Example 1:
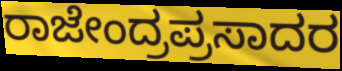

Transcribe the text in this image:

ರಾಜೇಂದ್ರಪ್ರಸಾದರ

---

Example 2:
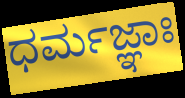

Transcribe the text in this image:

ಧರ್ಮಜ್ಞಾಃ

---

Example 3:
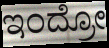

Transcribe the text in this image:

ಇಂದ್ರೋ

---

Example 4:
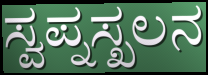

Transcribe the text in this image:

ಸ್ವಪ್ನಸ್ಖಲನ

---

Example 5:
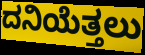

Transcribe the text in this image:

ದನಿಯೆತ್ತಲು